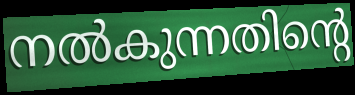
നൽകുന്നതിന്റെ